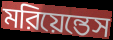
মরিয়েন্তেস